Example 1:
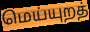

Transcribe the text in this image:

மெய்யுறத்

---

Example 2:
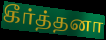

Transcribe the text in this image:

கீர்த்தனா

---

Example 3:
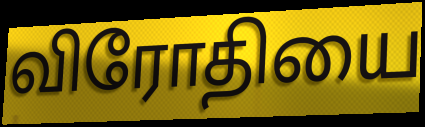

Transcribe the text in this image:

விரோதியை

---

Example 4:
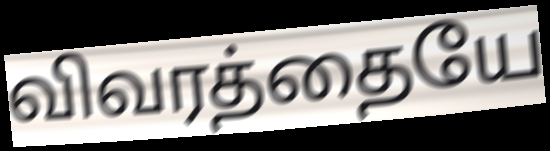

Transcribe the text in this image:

விவரத்தையே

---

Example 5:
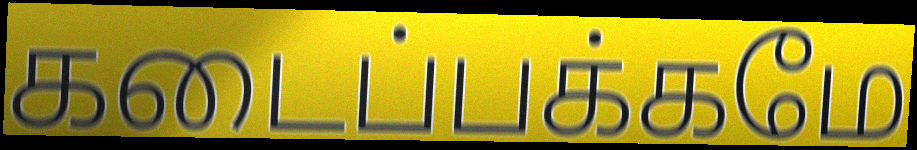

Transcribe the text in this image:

கடைப்பக்கமே